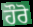
ਹੌਰੋ